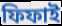
ফিফাই